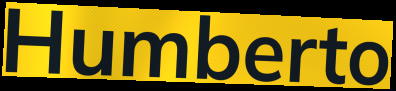
Humberto